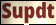
Supdt